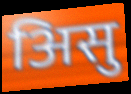
अिसु